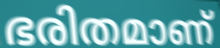
ഭരിതമാണ്